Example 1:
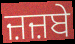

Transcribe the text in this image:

ਜ਼ਜ਼ਬੇ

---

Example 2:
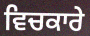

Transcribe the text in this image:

ਵਿਚਕਾਰੇ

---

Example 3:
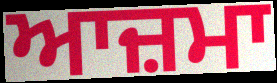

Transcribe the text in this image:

ਆਜ਼ਮਾ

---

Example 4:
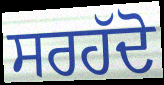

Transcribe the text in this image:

ਸਰਹੱਦੋ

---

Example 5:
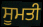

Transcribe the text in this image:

ਸੂਮਤੀ